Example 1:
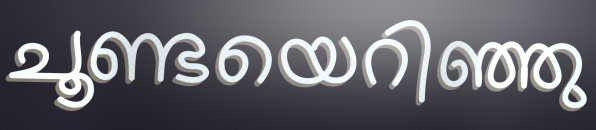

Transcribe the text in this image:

ചൂണ്ടയെറിഞ്ഞു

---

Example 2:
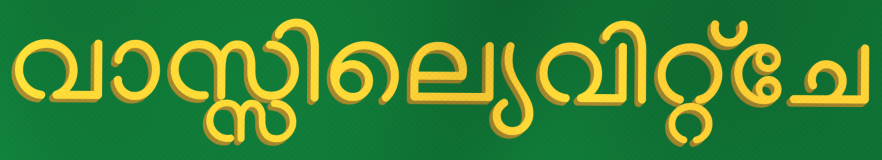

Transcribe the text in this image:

വാസ്സില്യെവിറ്റ്ചേ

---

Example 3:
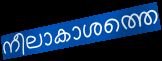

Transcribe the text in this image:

നീലാകാശത്തെ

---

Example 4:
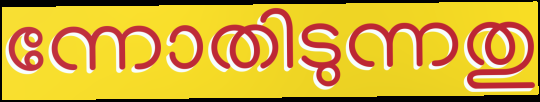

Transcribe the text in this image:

ന്നോതിടുന്നതു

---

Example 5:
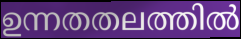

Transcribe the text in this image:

ഉന്നതതലത്തിൽ